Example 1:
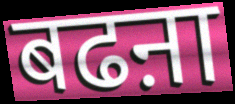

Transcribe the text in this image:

बढऩा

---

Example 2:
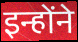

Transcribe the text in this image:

इन्‍होंने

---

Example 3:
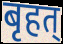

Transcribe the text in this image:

बृहत्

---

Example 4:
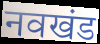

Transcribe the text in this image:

नवखंड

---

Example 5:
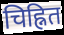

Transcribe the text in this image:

चिह्नित